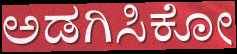
ಅಡಗಿಸಿಕೋ